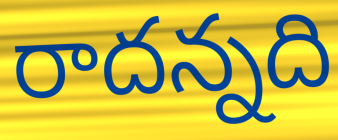
రాదన్నది